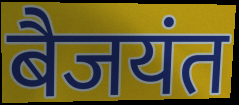
बैजयंत